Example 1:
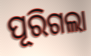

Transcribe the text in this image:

ପୂରିଗଲା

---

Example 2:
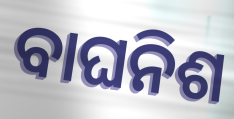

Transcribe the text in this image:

ବାଘନିଶ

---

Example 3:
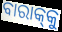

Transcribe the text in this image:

ବାରାକ୍‌କୁ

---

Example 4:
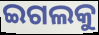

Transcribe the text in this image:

ଇଗଲକୁ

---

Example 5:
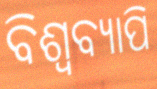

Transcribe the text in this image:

ବିଶ୍ବବ୍ୟାପି